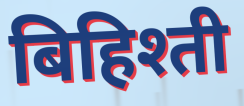
बिहिश्ती